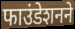
फाउंडेशनने